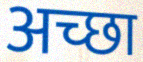
अच्‍छा